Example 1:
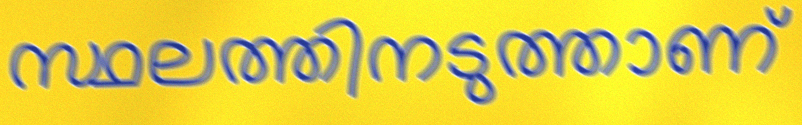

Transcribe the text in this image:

സ്ഥലത്തിനടുത്താണ്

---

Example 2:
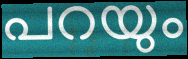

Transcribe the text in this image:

പറയും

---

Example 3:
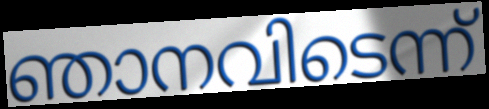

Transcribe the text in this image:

ഞാനവിടെന്ന്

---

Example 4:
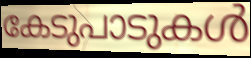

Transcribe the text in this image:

കേടുപാടുകൾ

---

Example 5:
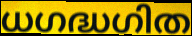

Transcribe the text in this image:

ധഗദ്ധഗിത